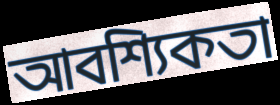
আবশ্যিকতা